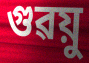
গুৱয়ু